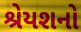
શ્રેયશનો